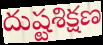
దుష్టశిక్షణ